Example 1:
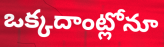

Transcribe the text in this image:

ఒక్కదాంట్లోనూ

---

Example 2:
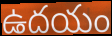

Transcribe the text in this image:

ఉదయం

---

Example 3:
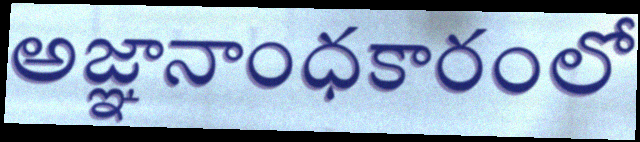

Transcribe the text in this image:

అజ్ఞానాంధకారంలో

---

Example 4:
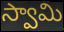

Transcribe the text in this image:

స్వామి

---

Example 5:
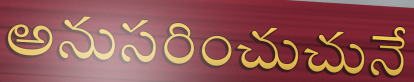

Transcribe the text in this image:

అనుసరించుచునే